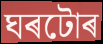
ঘৰটোৰ